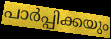
പാർപ്പിക്കയും